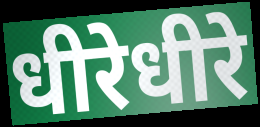
धीरेधीरे